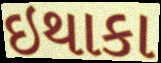
ઇથાકા